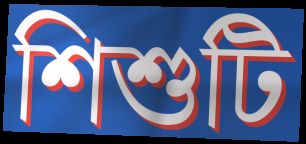
শিশুটি